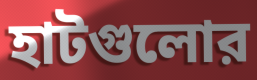
হাটগুলোর